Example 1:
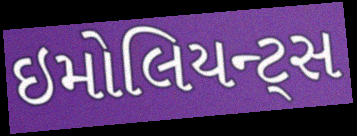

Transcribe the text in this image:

ઇમોલિયન્ટ્સ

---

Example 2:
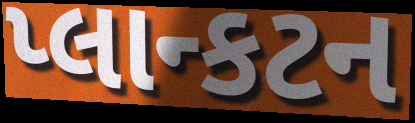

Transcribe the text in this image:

પ્લાન્કટન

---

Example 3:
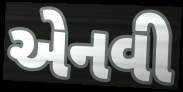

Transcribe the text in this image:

એનવી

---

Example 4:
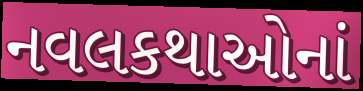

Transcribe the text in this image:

નવલકથાઓનાં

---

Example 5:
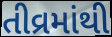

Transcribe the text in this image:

તીવ્રમાંથી